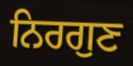
ਨਿਰਗੁਣ